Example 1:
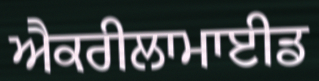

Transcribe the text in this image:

ਐਕਰੀਲਾਮਾਈਡ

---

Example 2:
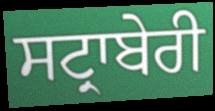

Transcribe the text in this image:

ਸਟ੍ਰਾਬੇਰੀ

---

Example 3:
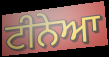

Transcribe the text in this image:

ਟੀਨੇਆ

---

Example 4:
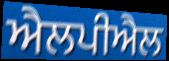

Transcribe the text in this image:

ਐਲਪੀਐਲ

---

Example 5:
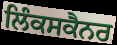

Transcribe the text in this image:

ਲਿੰਕਸਕੈਨਰ